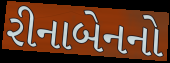
રીનાબેનનો